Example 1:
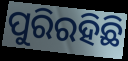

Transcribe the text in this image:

ପୁରିରହିଛି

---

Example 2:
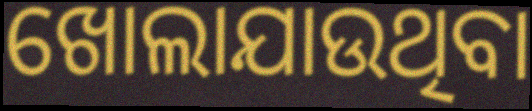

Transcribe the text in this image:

ଖୋଲାଯାଉଥିବା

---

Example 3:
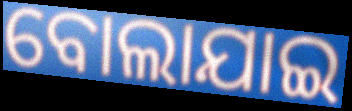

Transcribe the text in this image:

ବୋଲାଯାଇ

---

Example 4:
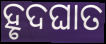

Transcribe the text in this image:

ହୃଦଘାତ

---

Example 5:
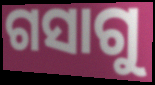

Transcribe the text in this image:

ଗସାଗୁ